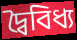
দ্বৈবিধ্য